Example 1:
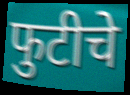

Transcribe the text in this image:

फुटीचे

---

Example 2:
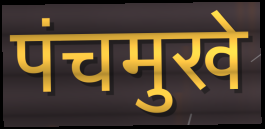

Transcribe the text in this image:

पंचमुखे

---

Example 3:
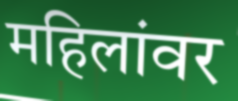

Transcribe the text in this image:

महिलांवर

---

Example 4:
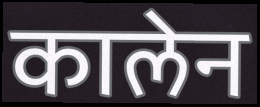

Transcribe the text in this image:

कालेन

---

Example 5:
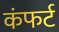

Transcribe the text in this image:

कंफर्ट